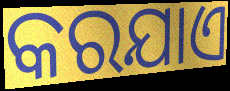
କରଯାଏ